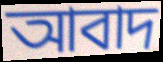
আবাদ